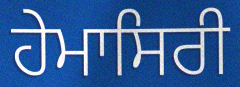
ਹੇਮਾਸਿਰੀ